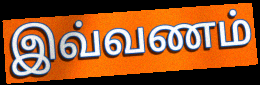
இவ்வணம்